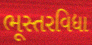
ભૂસ્તરવિદ્યા